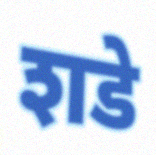
शडे